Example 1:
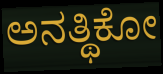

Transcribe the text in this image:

ಅನತ್ಥಿಕೋ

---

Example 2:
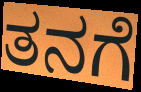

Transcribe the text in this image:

ತನಗೆ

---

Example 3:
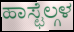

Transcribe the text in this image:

ಹಾಸ್ಟೆಲ್ಗಳ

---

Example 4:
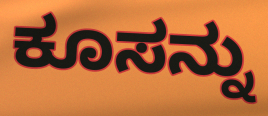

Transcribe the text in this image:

ಕೂಸನ್ನು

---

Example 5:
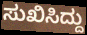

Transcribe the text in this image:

ಸುಖಿಸಿದ್ದು